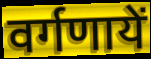
वर्गणायें